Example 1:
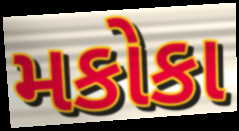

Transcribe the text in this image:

મકોકા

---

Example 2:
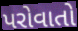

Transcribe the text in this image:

પરોવાતો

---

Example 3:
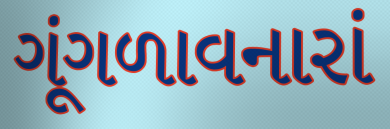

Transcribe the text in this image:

ગૂંગળાવનારાં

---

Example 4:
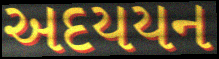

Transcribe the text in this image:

અદયયન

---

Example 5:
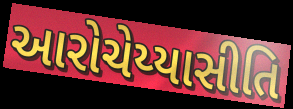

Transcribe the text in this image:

આરોચેય્યાસીતિ